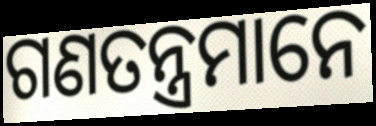
ଗଣତନ୍ତ୍ରମାନେ